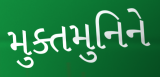
મુક્તમુનિને